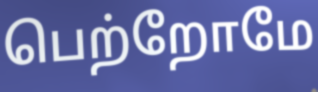
பெற்றோமே